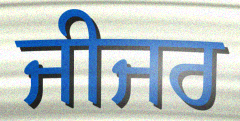
ਜੀਜਰ